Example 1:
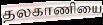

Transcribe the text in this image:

தலகாணியை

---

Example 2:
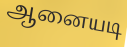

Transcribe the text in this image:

ஆனையடி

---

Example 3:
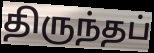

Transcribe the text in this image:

திருந்தப்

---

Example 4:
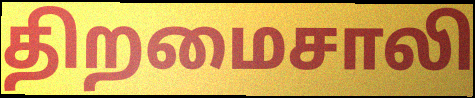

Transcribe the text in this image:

திறமைசாலி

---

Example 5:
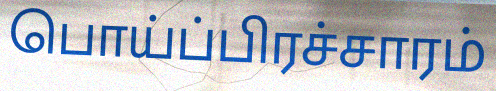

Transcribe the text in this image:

பொய்ப்பிரச்சாரம்